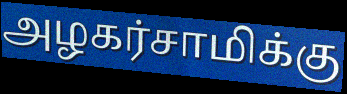
அழகர்சாமிக்கு